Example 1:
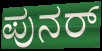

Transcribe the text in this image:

ಪುನರ್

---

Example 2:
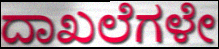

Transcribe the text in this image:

ದಾಖಲೆಗಳೇ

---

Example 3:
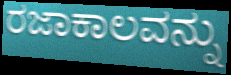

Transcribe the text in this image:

ರಜಾಕಾಲವನ್ನು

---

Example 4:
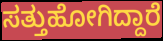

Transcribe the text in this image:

ಸತ್ತುಹೋಗಿದ್ದಾರೆ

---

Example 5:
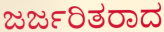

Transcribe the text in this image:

ಜರ್ಜರಿತರಾದ